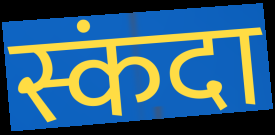
स्कंदा